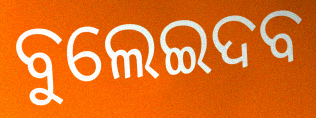
ବୁଲେଇଦବ